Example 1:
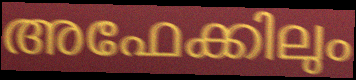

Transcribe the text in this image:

അഫേക്കിലും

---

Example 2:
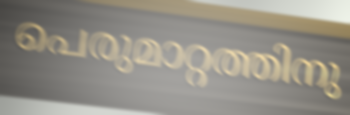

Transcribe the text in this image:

പെരുമാറ്റത്തിനു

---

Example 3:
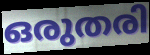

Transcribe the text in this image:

ഒരുതരി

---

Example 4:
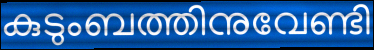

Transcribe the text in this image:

കുടുംബത്തിനുവേണ്ടി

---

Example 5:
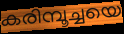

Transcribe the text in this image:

കരിമ്പൂച്ചയെ